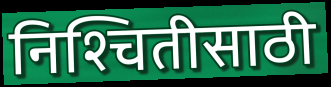
निश्चितीसाठी